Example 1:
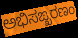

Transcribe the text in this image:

ಅಭಿಸಙ್ಖರಣಂ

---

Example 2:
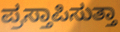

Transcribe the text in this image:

ಪ್ರಸ್ತಾಪಿಸುತ್ತಾ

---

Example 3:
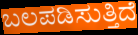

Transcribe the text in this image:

ಬಲಪಡಿಸುತ್ತಿದೆ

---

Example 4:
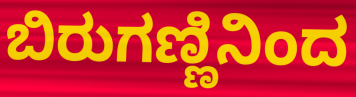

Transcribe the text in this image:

ಬಿರುಗಣ್ಣಿನಿಂದ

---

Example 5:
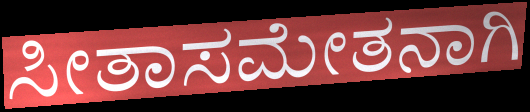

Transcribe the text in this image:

ಸೀತಾಸಮೇತನಾಗಿ